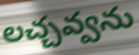
లచ్చవ్వను